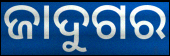
ଜାଦୁଗର